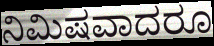
ನಿಮಿಷವಾದರೂ